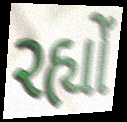
રહ્યોં